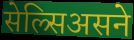
सेल्सिअसने